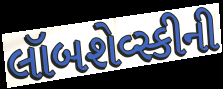
લૉબશેવ્સ્કીની